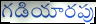
గడియారపు